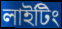
লাইটিং